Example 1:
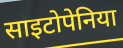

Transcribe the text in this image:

साइटोपेनिया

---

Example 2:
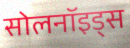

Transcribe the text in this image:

सोलनॉइड्स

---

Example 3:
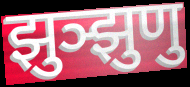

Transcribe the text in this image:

झुञ्झुणु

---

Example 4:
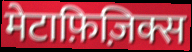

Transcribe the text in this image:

मेटाफ़िज़िक्स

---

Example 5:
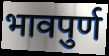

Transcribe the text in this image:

भावपुर्ण